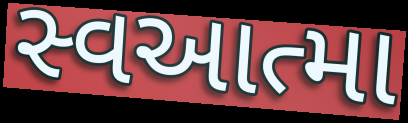
સ્વઆત્મા